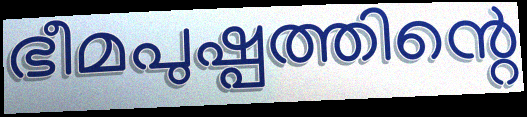
ഭീമപുഷ്പത്തിന്റെ